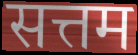
सत्तम